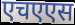
एचएएस